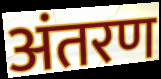
अंतरण